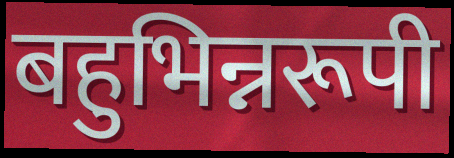
बहुभिन्नरूपी